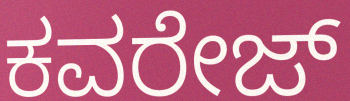
ಕವರೇಜ್